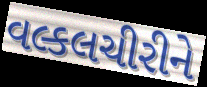
વલ્કલચીરીને